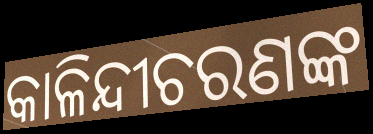
କାଳିନ୍ଦୀଚରଣଙ୍କ